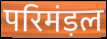
परिमंड़ल